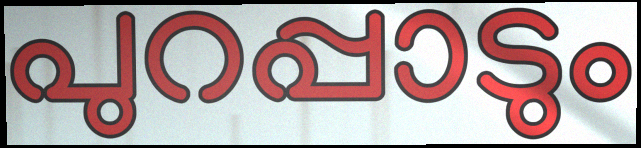
പുറപ്പാടും